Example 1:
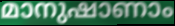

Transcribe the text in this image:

മാനുഷാണാം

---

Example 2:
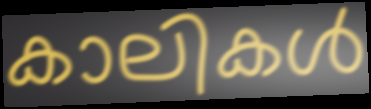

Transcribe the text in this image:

കാലികൾ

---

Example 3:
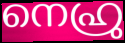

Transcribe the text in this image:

നെഹ്രു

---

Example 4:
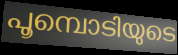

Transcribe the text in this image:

പൂമ്പൊടിയുടെ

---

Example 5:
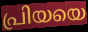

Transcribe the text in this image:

പ്രിയയെ